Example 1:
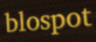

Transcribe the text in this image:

blospot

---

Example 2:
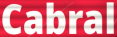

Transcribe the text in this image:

Cabral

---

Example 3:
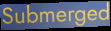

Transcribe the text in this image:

Submerged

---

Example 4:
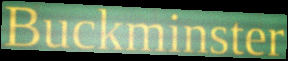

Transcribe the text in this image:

Buckminster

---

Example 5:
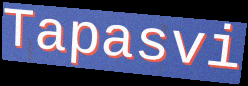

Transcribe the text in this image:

Tapasvi